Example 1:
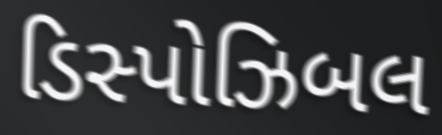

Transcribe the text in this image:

ડિસ્પોઝિબલ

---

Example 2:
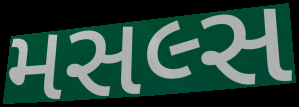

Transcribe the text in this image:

મસલ્સ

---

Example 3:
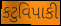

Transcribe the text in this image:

કટુવિપાકી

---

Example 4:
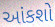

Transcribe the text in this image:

આંકશો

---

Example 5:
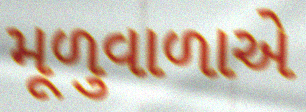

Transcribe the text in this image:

મૂળુવાળાએ